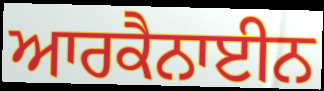
ਆਰਕੈਨਾਈਨ